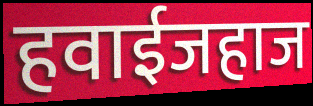
हवाईजहाज